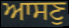
ਆਸਣੁ